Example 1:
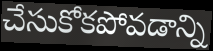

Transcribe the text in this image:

చేసుకోకపోవడాన్ని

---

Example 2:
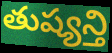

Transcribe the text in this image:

తుష్యన్తి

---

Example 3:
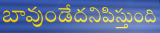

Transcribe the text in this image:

బావుండేదనిపిస్తుంది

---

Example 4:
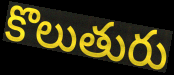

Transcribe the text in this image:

కొలుతురు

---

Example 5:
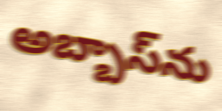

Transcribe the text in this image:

అబ్బాస్‌ను